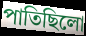
পাতিছিলো